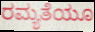
ರಮ್ಯತೆಯೂ